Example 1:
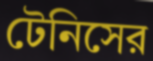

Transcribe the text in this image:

টেনিসের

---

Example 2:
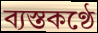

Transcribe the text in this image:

ব্যস্তকণ্ঠে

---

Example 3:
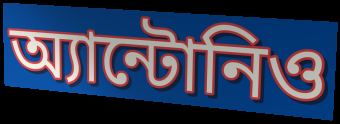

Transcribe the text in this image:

অ্যান্টোনিও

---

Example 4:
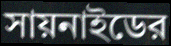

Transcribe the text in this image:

সায়নাইডের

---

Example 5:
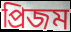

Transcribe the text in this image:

প্রিজম